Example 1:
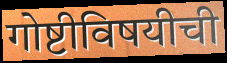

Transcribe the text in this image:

गोष्टीविषयीची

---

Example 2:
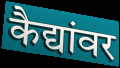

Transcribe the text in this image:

कैद्यांवर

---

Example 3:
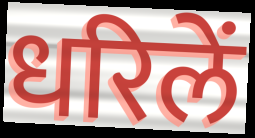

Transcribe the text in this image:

धरिलें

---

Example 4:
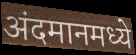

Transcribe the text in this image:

अंदमानमध्ये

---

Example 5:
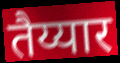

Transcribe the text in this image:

तैय्यार